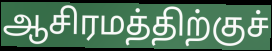
ஆசிரமத்திற்குச்